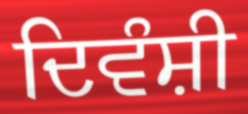
ਦਿਵੰਸ਼ੀ